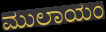
ಮುಲಾಯಂ